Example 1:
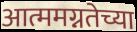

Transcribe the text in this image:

आत्ममग्नतेच्या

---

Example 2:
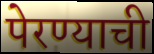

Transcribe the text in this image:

पेरण्याची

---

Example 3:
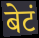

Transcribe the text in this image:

बेटं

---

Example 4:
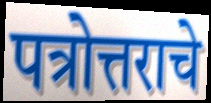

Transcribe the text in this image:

पत्रोत्तराचे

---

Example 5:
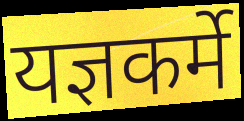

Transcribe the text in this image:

यज्ञकर्मे